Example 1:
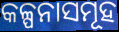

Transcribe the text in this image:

କଳ୍ପନାସମୂହ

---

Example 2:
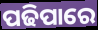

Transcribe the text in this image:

ପଢିପାରେ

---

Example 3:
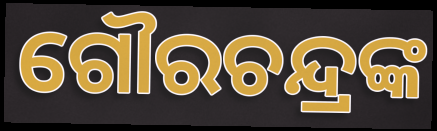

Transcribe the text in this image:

ଗୌରଚନ୍ଦ୍ରଙ୍କ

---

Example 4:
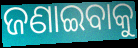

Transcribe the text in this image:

ଜଣାଇବାକୁ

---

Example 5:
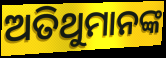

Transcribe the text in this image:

ଅତିଥୁମାନଙ୍କ